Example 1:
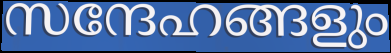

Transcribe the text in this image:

സന്ദേഹങ്ങളും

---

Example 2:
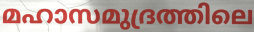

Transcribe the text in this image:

മഹാസമുദ്രത്തിലെ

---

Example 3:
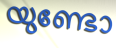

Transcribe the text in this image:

യുണ്ടോ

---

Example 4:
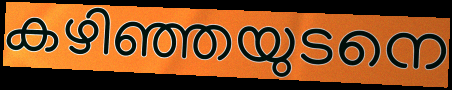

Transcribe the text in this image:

കഴിഞ്ഞയുടനെ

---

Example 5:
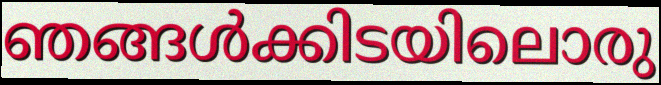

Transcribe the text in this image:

ഞങ്ങൾക്കിടയിലൊരു